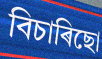
বিচাৰিছো